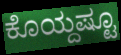
ಕೊಯ್ದಷ್ಟೂ